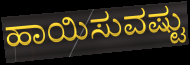
ಹಾಯಿಸುವಷ್ಟು